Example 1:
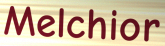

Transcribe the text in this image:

Melchior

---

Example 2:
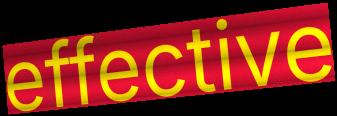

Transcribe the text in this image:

effective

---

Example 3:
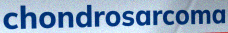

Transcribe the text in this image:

chondrosarcoma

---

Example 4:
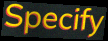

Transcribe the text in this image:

Specify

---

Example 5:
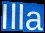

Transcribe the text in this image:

Illa